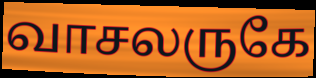
வாசலருகே